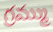
గ్రమ్ము